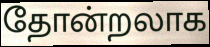
தோன்றலாக